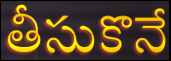
తీసుకొనే